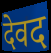
देवद